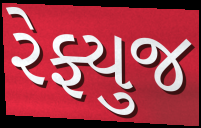
રેફ્યુજ